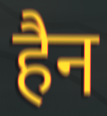
हैन